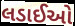
લડાઈઓ